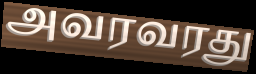
அவரவரது